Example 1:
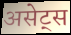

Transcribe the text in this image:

असेट्स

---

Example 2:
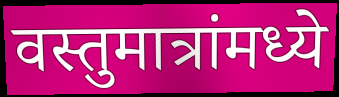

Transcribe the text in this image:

वस्तुमात्रांमध्ये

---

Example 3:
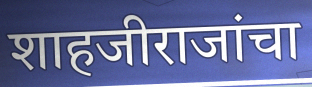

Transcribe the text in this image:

शाहजीराजांचा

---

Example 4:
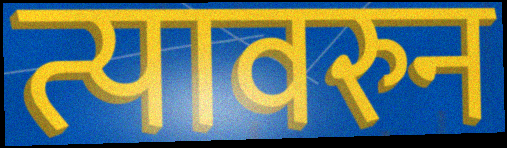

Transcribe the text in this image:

त्यावरुन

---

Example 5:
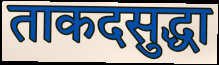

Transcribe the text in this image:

ताकदसुद्धा